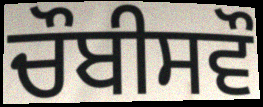
ਚੌਬੀਸਵੌ